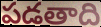
పడతాది